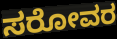
ಸರೋವರ